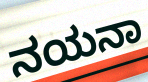
ನಯನಾ